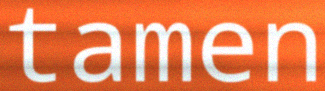
tamen